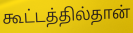
கூட்டத்தில்தான்